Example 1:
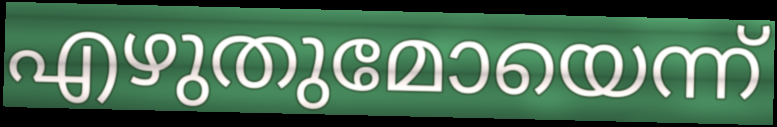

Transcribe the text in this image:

എഴുതുമോയെന്ന്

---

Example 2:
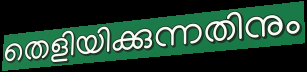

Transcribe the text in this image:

തെളിയിക്കുന്നതിനും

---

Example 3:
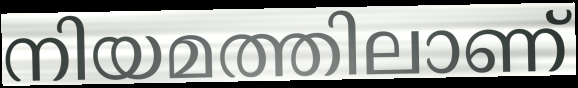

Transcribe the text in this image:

നിയമത്തിലാണ്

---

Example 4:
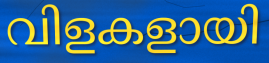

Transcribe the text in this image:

വിളകളായി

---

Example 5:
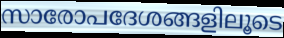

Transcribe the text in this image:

സാരോപദേശങ്ങളിലൂടെ